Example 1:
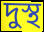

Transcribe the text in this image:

দুস্থ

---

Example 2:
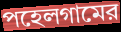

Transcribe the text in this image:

পহেলগামের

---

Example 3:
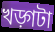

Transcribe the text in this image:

খড়্গটা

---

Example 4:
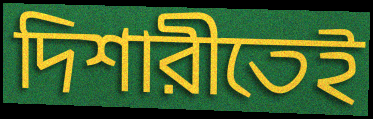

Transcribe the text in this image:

দিশারীতেই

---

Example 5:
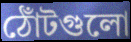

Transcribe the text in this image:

ঠোঁটগুলো